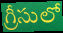
గ్రీసులో